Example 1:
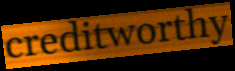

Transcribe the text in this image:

creditworthy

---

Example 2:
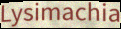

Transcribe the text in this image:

Lysimachia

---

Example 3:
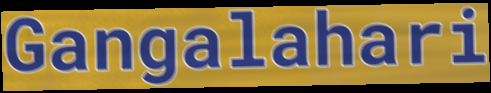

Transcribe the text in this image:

Gangalahari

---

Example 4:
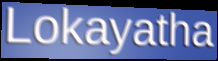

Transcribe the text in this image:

Lokayatha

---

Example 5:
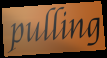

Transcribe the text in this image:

pulling